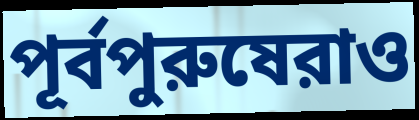
পূর্বপুরুষেরাও